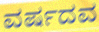
ವರ್ಷದವ